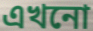
এখনো